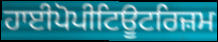
ਹਾਈਪੋਪੀਟਿਊਟਰਿਜ਼ਮ